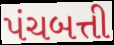
પંચબત્તી